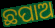
ଛପାଅ